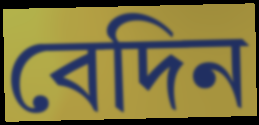
বেদিন